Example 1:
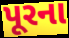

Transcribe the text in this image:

પૂરના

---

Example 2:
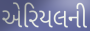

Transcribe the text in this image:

એરિયલની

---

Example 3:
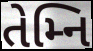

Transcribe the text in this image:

તેમ્નિ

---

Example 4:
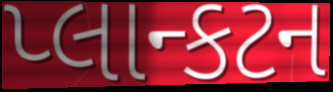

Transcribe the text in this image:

પ્લાન્કટન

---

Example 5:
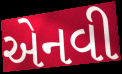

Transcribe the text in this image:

એનવી